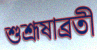
শুশ্রূষাব্রতী